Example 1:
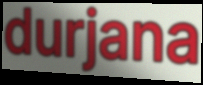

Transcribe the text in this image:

durjana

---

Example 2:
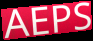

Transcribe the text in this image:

AEPS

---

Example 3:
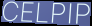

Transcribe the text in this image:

CELPIP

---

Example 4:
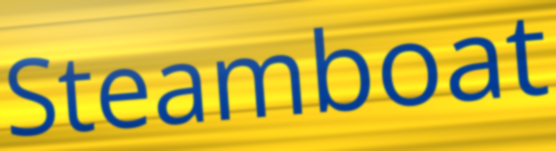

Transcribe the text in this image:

Steamboat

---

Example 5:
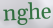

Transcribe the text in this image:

nghe